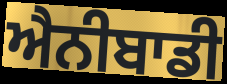
ਐਨੀਬਾਡੀ